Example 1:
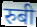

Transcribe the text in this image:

रुबी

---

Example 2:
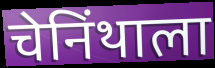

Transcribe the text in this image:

चेनिंथाला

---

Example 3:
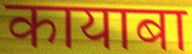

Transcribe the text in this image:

कायाबा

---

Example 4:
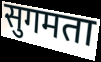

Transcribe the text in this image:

सुगमता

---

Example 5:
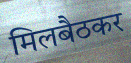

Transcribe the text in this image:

मिलबैठकर